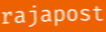
rajapost